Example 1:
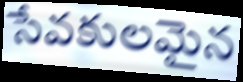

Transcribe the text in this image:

సేవకులమైన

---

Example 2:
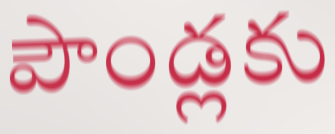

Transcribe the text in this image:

పౌండ్లకు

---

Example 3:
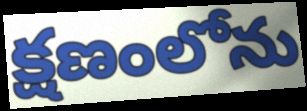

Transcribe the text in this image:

క్షణంలోను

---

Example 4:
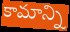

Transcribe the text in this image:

కామాన్ని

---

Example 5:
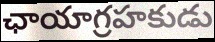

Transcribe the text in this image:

ఛాయాగ్రహకుడు